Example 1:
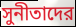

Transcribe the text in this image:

সুনীতাদের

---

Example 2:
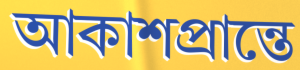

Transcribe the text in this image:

আকাশপ্রান্তে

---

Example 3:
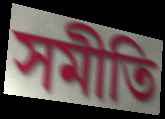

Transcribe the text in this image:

সমীতি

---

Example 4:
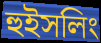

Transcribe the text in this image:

হুইসলিং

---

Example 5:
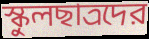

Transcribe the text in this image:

স্কুলছাত্রদের